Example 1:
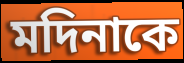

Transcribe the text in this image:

মদিনাকে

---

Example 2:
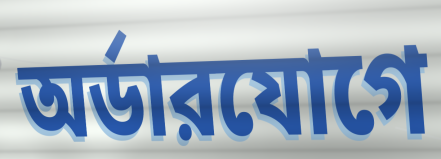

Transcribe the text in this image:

অর্ডারযোগে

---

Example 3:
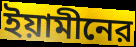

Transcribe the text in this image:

ইয়ামীনের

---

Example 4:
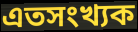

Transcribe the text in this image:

এতসংখ্যক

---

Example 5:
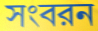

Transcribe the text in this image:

সংবরন